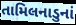
તામિલનાડુનાં